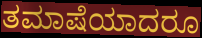
ತಮಾಷೆಯಾದರೂ